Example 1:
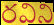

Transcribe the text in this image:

రవిని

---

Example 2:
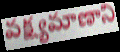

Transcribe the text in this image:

వక్ష్యమాణాని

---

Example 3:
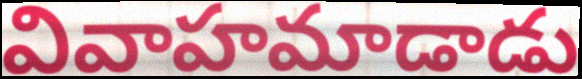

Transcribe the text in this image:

వివాహమాడాడు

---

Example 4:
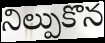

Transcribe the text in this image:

నిల్పుకొన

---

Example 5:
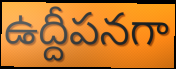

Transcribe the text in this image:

ఉద్దీపనగా